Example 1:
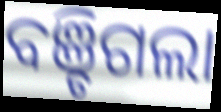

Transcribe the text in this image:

ବଞ୍ଚିଗଲା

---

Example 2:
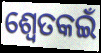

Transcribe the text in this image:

ଶ୍ୱେତକଇଁ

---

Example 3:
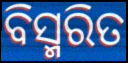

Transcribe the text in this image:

ବିସ୍ମରିତ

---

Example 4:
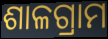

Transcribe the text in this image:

ଶାଳଗ୍ରାମ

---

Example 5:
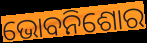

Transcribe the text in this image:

ଭୋବନିଶୋର